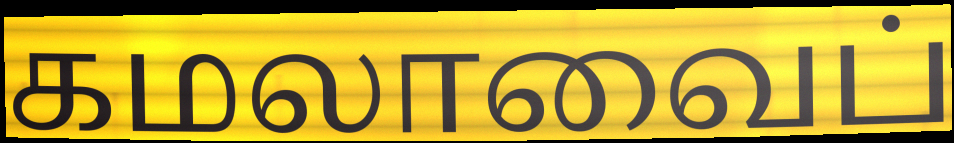
கமலாவைப்